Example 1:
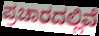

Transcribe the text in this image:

ಪ್ರಚಾರದಲ್ಲಿವೆ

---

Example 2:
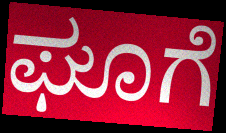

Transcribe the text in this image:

ಘೂಗೆ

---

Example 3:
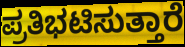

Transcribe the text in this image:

ಪ್ರತಿಭಟಿಸುತ್ತಾರೆ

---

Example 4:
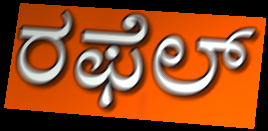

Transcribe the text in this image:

ರಫೆಲ್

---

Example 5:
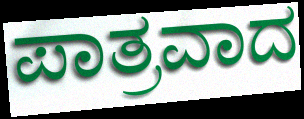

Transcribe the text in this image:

ಪಾತ್ರವಾದ